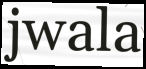
jwala